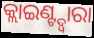
କ୍ଲାଇଣ୍ଟ୍ଦ୍ୱାରା